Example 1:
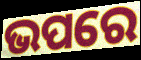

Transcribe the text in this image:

ଭପରେ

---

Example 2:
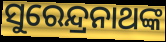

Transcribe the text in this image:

ସୁରେନ୍ଦ୍ରନାଥଙ୍କ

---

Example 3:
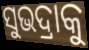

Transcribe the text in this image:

ସୁଭଦ୍ରାକୁ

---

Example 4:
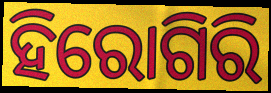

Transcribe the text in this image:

ହିରୋଗିରି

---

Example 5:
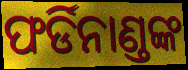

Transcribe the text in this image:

ଫର୍ଡିନାଣ୍ଡଙ୍କ